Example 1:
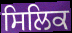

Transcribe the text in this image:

ਸਿਲਿਕ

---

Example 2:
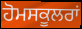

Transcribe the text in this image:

ਹੋਮਸਕੂਲਰਾਂ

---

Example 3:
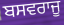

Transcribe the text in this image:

ਬਸਵਰਾਜੂ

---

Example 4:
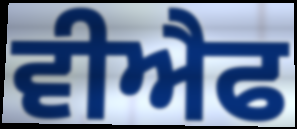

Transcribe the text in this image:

ਵੀਐਫ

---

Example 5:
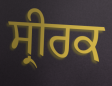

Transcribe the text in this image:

ਸ੍ਰੀਰਕ